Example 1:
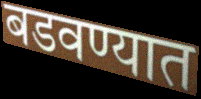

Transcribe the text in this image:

बडवण्यात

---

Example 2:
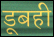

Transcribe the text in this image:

डूबही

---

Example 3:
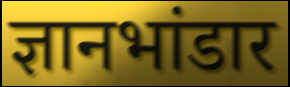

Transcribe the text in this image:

ज्ञानभांडार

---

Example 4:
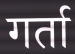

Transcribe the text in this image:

गर्ता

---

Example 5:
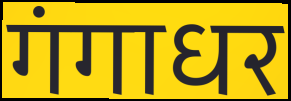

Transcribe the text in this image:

गंगाधर